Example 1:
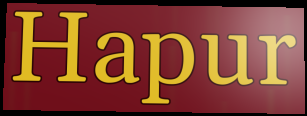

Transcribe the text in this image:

Hapur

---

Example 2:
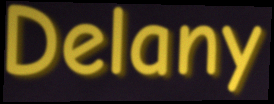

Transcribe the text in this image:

Delany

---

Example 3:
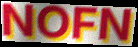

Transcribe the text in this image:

NOFN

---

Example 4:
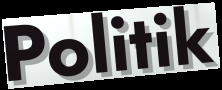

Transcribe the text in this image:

Politik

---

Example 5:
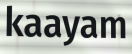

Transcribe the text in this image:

kaayam